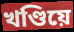
খণ্ডিয়ে